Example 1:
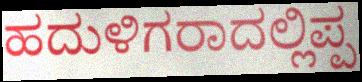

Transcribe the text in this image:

ಹದುಳಿಗರಾದಲ್ಲಿಪ್ಪ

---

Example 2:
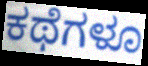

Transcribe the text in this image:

ಕಥೆಗಳೂ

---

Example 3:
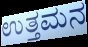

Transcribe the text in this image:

ಉತ್ತಮನ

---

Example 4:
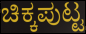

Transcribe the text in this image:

ಚಿಕ್ಕಪುಟ್ಟ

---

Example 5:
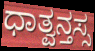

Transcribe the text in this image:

ಧಾತ್ವನ್ತಸ್ಸ